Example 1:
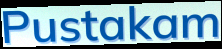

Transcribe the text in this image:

Pustakam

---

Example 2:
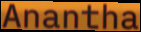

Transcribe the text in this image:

Anantha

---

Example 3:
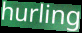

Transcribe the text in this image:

hurling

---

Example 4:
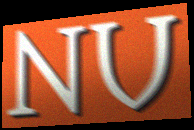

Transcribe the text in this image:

NU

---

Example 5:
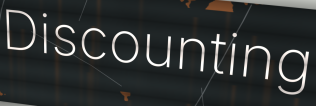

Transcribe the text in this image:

Discounting